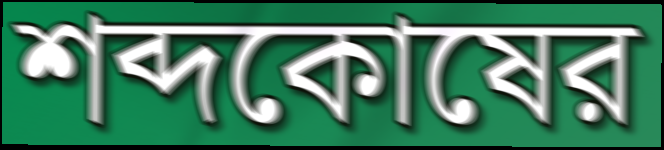
শব্দকোষের